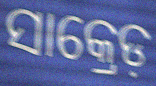
ସାକ୍ରେଡ଼